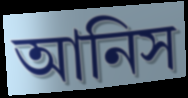
আনিস